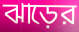
ঝাড়ের